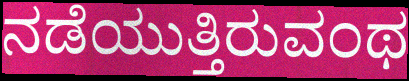
ನಡೆಯುತ್ತಿರುವಂಥ